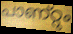
പാണ്റ്റും